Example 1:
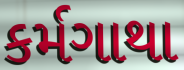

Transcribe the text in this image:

કર્મગાથા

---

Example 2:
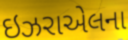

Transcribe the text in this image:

ઇઝરાએલના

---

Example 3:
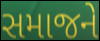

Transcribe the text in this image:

સમાજને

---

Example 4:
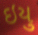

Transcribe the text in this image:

ઇયુ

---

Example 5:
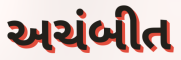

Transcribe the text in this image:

અચંબીત